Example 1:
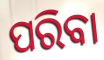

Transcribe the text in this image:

ପରିବା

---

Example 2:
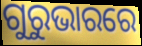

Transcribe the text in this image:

ଗୁରୁଭାରରେ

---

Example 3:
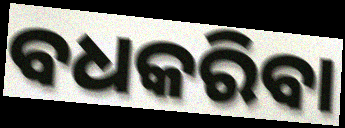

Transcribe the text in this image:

ବଧକରିବା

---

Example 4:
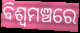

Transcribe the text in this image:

ବିଶ୍ୱମଞ୍ଚରେ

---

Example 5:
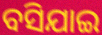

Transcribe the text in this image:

ବସିଯାଇ